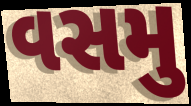
વસમુ